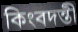
কিংবদন্তী